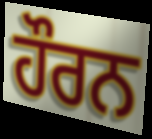
ਹੌਰਨ